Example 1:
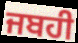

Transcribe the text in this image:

ਜਬਹੀ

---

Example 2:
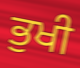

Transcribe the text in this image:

ਭੁਖੀ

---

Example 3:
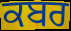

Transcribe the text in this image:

ਕਬਰ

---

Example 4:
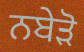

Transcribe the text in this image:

ਨਬੇੜੋ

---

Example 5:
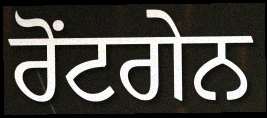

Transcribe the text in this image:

ਰੋਂਟਗੇਨ